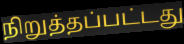
நிறுத்தப்பட்டது